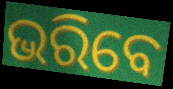
ଭରିବେ